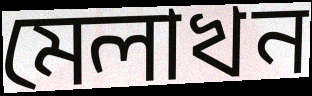
মেলাখন